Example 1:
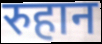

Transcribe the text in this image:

रुहान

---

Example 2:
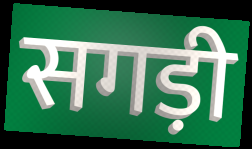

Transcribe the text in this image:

सगड़ी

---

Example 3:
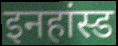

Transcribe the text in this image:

इनहांस्ड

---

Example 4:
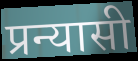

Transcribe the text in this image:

प्रन्यासी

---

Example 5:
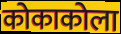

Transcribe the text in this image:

कोकाकोला